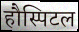
हौस्पिटल